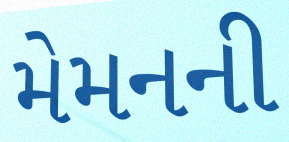
મેમનની